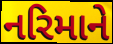
નરિમાને